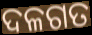
ଦଳଗତ